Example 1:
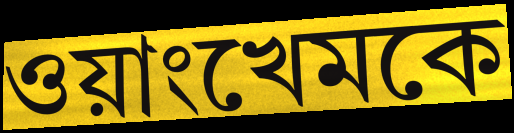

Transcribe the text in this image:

ওয়াংখেমকে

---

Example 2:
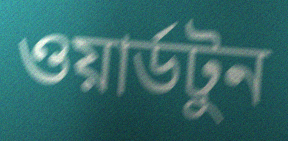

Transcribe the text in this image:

ওয়ার্ডটুন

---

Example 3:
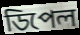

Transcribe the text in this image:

ডিপেল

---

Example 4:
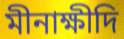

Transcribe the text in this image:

মীনাক্ষীদি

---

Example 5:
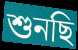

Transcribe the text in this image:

শুনছি